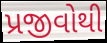
પ્રજીવોથી